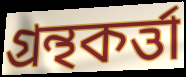
গ্রন্থকর্ত্তা